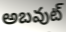
అబవుట్